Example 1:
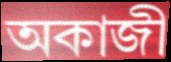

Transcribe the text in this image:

অকাজী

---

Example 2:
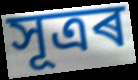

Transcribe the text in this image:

সূত্ৰৰ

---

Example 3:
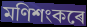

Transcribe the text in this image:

মণিশংকৰে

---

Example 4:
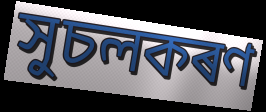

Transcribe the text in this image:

সুচলকৰণ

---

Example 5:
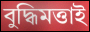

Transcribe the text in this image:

বুদ্ধিমত্তাই